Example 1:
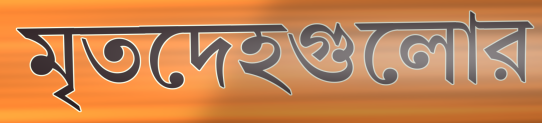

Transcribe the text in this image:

মৃতদেহগুলোর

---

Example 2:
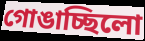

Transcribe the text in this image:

গোঙাচ্ছিলো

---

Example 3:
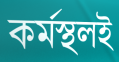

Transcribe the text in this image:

কর্মস্থলই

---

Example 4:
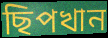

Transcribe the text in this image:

ছিপখান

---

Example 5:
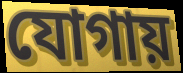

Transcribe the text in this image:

যোগায়